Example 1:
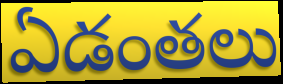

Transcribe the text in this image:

ఏడంతలు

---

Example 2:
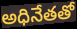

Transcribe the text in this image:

అధినేతతో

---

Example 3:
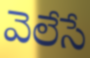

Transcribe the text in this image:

వెలేసే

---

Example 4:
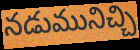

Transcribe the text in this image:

నడుమునిచ్చి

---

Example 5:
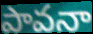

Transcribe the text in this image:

పావనా